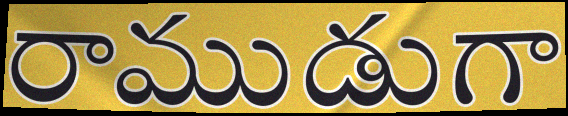
రాముడుగా